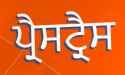
ਪ੍ਰੈਸਟ੍ਰੈਸ